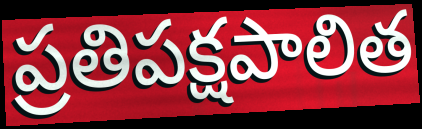
ప్రతిపక్షపాలిత